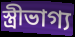
স্ত্রীভাগ্য